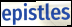
epistles